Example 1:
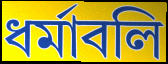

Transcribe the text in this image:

ধর্মাবলি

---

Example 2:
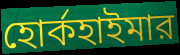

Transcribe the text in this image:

হোর্কহাইমার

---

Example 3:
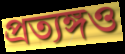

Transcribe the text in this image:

প্রত্যঙ্গও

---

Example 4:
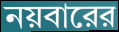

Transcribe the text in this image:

নয়বারের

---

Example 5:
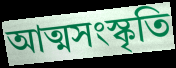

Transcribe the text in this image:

আত্মসংস্কৃতি